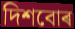
দিশবোৰ